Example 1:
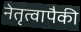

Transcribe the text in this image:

नेतृत्वापैकी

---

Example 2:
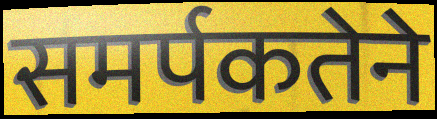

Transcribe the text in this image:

समर्पकतेने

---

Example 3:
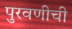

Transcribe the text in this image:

पुरवणीची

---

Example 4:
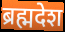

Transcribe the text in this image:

ब्रह्मदेश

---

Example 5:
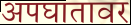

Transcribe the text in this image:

अपघातावर